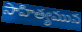
సాహిత్యమున